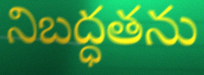
నిబద్ధతను